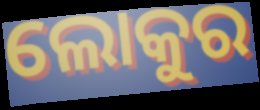
ଲୋକୁର